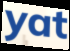
yat